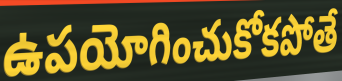
ఉపయోగించుకోకపోతే